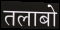
तलाबो